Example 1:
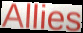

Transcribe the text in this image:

Allies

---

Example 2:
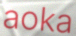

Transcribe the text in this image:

aoka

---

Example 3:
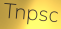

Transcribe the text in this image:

Tnpsc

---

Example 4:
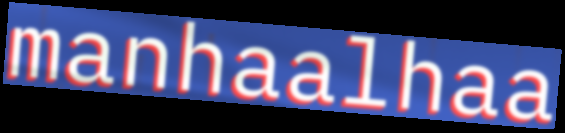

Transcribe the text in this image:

manhaalhaa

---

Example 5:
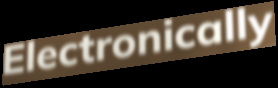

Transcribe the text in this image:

Electronically